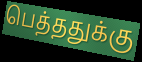
பெத்ததுக்கு